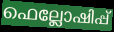
ഫെല്ലോഷിപ്പ്